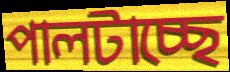
পালটাচ্ছে